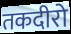
तकदीरो